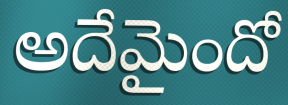
అదేమైందో